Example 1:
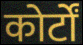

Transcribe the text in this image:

कोर्टों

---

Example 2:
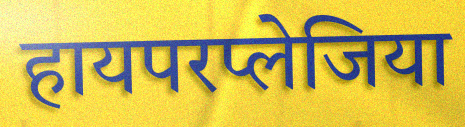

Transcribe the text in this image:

हायपरप्लेजिया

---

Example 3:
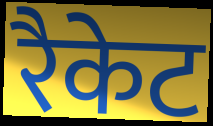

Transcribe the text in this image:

रैकेट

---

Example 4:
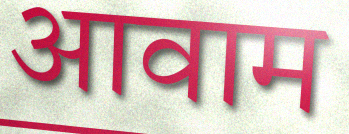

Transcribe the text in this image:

आवाम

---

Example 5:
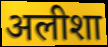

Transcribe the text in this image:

अलीशा